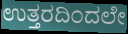
ಉತ್ತರದಿಂದಲೇ